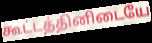
கூட்டத்தினிடையே